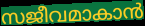
സജീവമാകാൻ